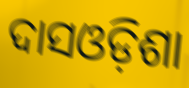
ଦାସଓଡ଼ିଶା